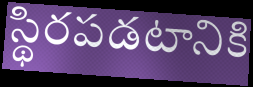
స్థిరపడటానికి